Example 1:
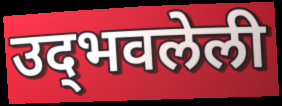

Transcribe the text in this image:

उद्‌भवलेली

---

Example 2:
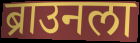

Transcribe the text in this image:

ब्राउनला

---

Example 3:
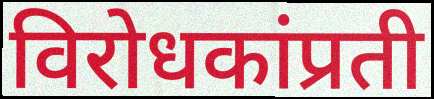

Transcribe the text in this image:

विरोधकांप्रती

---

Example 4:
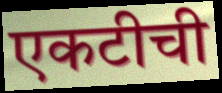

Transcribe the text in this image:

एकटीची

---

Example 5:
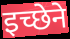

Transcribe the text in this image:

इच्छेने